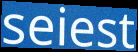
seiest